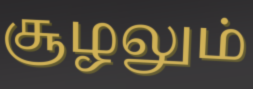
சூழலும்